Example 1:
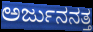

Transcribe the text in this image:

ಅರ್ಜುನನತ್ತ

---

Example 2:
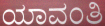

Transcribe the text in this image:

ಯಾವಂತಿ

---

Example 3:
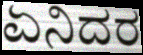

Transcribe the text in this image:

ಏನಿದರ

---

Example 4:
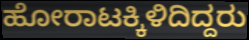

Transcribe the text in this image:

ಹೋರಾಟಕ್ಕಿಳಿದಿದ್ದರು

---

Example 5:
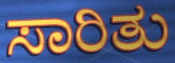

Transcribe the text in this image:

ಸಾರಿತು